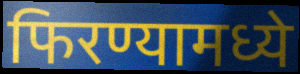
फिरण्यामध्ये